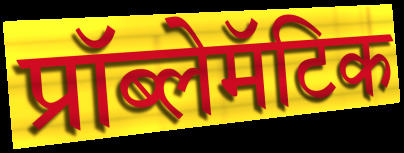
प्रॉब्लेमॅटिक